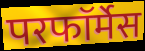
परफॉर्मेस